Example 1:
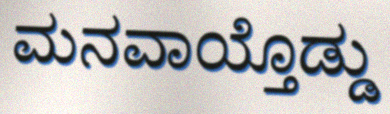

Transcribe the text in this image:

ಮನವಾಯ್ತೊಡ್ಡು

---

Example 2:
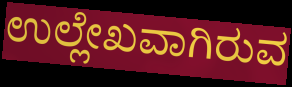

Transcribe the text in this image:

ಉಲ್ಲೇಖವಾಗಿರುವ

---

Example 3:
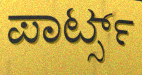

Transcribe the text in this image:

ಪಾರ್ಟ್ಸ್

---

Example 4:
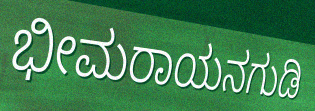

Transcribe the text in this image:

ಭೀಮರಾಯನಗುಡಿ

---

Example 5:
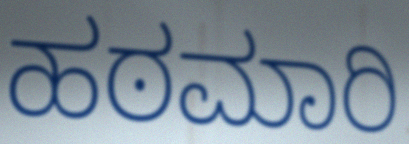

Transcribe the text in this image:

ಹಠಮಾರಿ